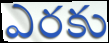
ఎరకు